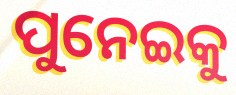
ପୁନେଇକୁ